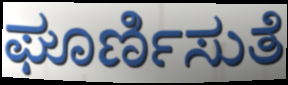
ಘೂರ್ಣಿಸುತೆ